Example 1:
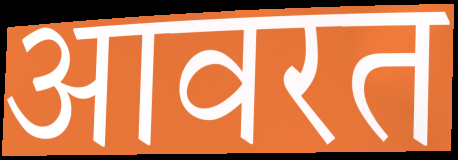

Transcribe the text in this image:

आवरत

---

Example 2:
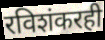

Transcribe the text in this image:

रविशंकरही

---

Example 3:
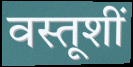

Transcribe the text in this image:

वस्तूशीं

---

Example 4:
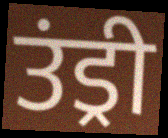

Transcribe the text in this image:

उंड्री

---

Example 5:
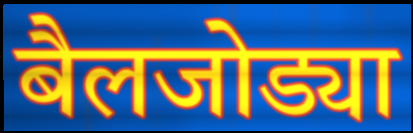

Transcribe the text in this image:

बैलजोड्या